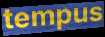
tempus